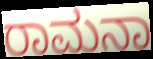
ರಾಮನಾ